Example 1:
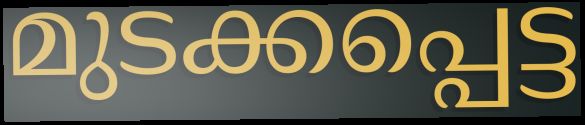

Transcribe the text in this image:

മുടക്കപ്പെട്ട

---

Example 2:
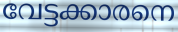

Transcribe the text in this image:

വേട്ടക്കാരനെ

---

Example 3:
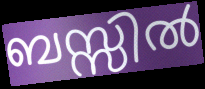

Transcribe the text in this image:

ബസ്സിൽ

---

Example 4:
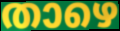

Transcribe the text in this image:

താഴെ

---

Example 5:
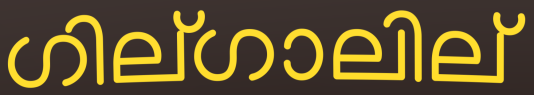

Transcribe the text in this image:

ഗില്ഗാലില്